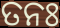
ତନଃ